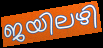
ജയിലഴി